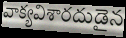
వాక్యవిశారదుడైన